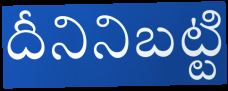
దీనినిబట్టి